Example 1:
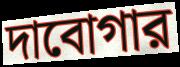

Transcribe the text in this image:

দাবোগার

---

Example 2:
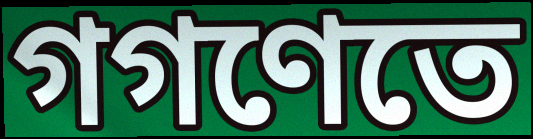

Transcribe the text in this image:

গগণেতে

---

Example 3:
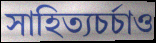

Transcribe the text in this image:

সাহিত্যচর্চাও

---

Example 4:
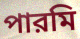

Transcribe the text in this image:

পারমি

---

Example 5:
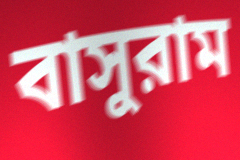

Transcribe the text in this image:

বাসুরাম